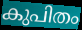
കുപിതം